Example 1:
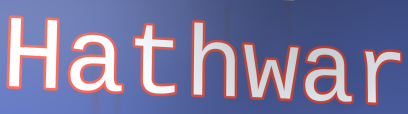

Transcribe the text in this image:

Hathwar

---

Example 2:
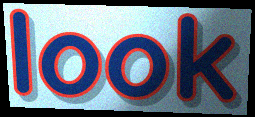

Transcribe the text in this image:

look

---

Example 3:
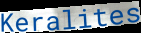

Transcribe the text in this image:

Keralites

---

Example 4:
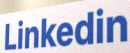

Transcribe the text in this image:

Linkedin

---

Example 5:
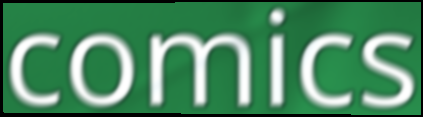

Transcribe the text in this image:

comics